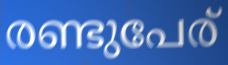
രണ്ടുപേര്